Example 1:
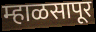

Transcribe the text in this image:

म्हाळसापूर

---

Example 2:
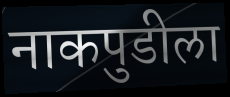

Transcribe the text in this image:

नाकपुडीला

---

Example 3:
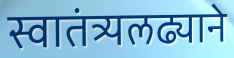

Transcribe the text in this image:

स्वातंत्र्यलढ्याने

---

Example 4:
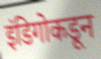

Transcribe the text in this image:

इंडिगोकडून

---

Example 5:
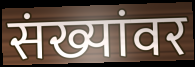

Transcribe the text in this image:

संख्यांवर